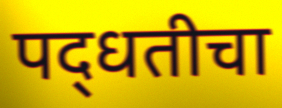
पद्धतीचा